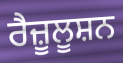
ਰੈਜ਼ੂਲੂਸ਼ਨ